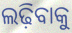
ଲଢ଼ିବାକୁ